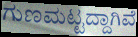
ಗುಣಮಟ್ಟದ್ದಾಗಿವೆ